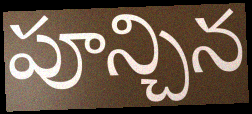
పూన్చిన